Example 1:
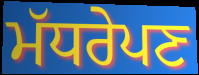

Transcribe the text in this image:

ਮੱਧਰੇਪਣ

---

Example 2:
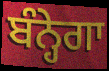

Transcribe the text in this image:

ਬੰਨ੍ਹੇਗਾ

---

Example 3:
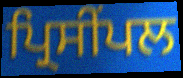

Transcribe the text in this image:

ਪ੍ਰਿਸੀਂਪਲ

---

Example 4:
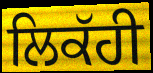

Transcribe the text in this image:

ਲਿਕੱਹੀ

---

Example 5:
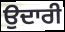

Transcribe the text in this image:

ਉਦਾਰੀ